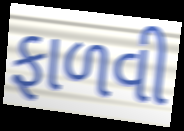
ફાળવી